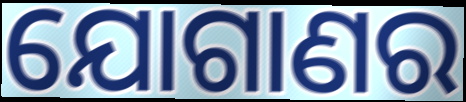
ଯୋଗାଣର